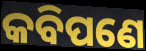
କବିପଣେ